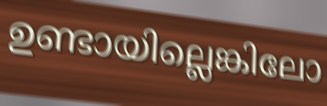
ഉണ്ടായില്ലെങ്കിലോ